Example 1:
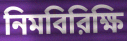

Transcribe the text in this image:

নিমবিরিক্ষি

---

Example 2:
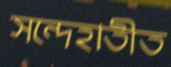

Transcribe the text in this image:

সন্দেহাতীত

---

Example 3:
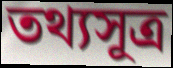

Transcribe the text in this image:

তথ্যসূত্র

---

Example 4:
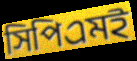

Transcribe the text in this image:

সিপিএমই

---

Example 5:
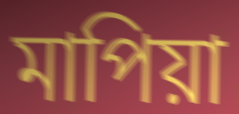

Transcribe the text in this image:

মাপিয়া